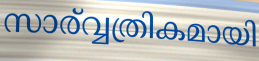
സാര്വ്വത്രികമായി